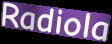
Radiola